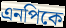
এনপিকে